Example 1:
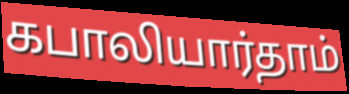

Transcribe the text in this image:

கபாலியார்தாம்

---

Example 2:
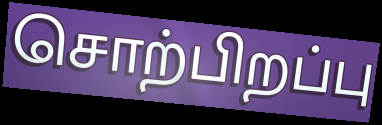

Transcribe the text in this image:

சொற்பிறப்பு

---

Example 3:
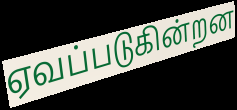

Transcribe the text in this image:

ஏவப்படுகின்றன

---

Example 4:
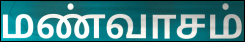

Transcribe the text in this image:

மண்வாசம்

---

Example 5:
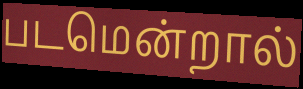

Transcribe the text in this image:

படமென்றால்